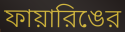
ফায়ারিঙের